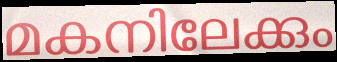
മകനിലേക്കും